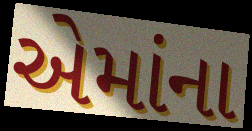
એમાંના